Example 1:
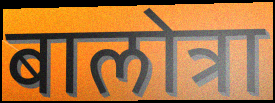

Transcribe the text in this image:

बालोत्रा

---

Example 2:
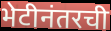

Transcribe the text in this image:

भेटीनंतरची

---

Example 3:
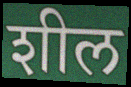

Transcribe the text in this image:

शील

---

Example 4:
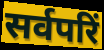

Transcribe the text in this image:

सर्वपरिं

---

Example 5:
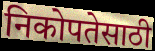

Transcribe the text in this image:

निकोपतेसाठी